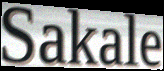
Sakale